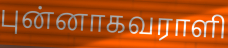
புன்னாகவராளி